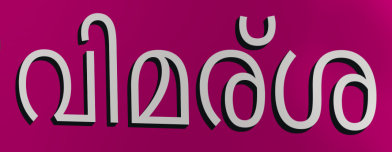
വിമര്ശ